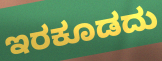
ಇರಕೂಡದು